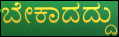
ಬೇಕಾದದ್ದು